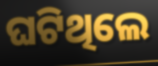
ଘଟିଥିଲେ